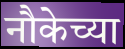
नौकेच्या